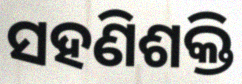
ସହଣିଶକ୍ତି